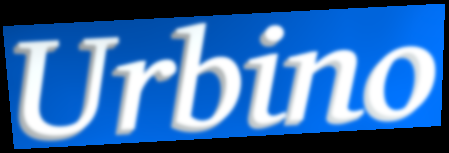
Urbino